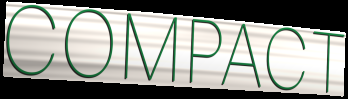
COMPACT